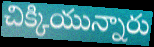
చిక్కియున్నారు